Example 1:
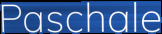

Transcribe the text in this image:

Paschale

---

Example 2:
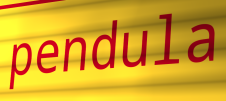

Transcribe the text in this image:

pendula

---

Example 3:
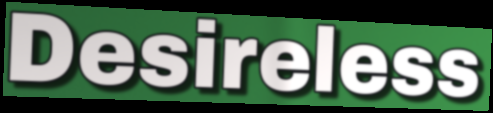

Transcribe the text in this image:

Desireless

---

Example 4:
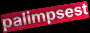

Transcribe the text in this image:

palimpsest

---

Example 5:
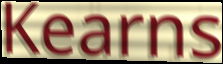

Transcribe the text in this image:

Kearns